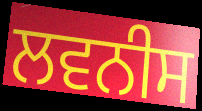
ਲਵਨੀਸ